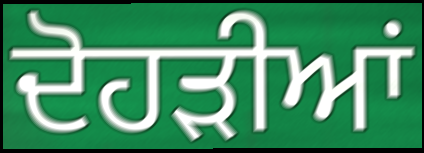
ਦੋਹੜੀਆਂ